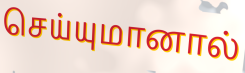
செய்யுமானால்